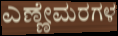
ಎಣ್ಣೇಮರಗಳ